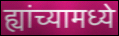
ह्यांच्यामध्ये